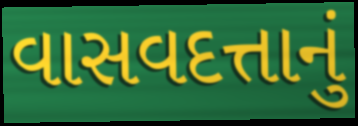
વાસવદત્તાનું